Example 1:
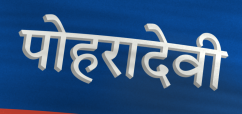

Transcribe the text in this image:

पोहरादेवी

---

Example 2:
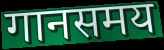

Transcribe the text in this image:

गानसमय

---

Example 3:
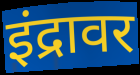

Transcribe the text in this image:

इंद्रावर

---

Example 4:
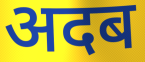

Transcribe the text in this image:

अदब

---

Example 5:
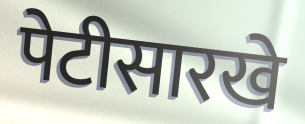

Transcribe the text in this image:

पेटीसारखे